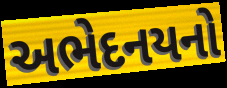
અભેદનયનો